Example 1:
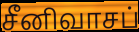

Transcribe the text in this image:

சீனிவாசப்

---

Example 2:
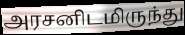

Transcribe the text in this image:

அரசனிடமிருந்து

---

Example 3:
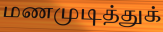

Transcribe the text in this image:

மணமுடித்துக்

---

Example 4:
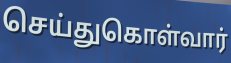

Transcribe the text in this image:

செய்துகொள்வார்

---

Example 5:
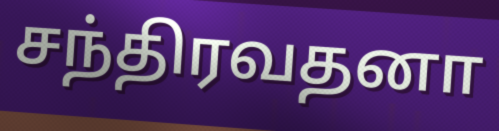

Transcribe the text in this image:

சந்திரவதனா